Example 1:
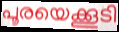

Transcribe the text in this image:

പൂരയെക്കൂടി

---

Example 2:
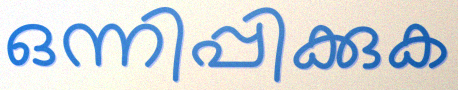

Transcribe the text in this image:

ഒന്നിപ്പിക്കുക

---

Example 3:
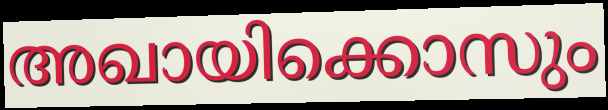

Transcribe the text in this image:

അഖായിക്കൊസും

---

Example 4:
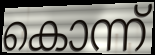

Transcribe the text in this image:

കൊന്ന്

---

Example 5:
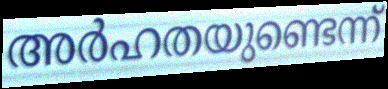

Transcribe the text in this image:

അർഹതയുണ്ടെന്ന്